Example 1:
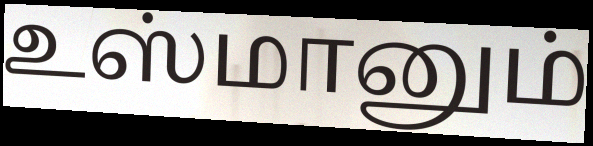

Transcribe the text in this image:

உஸ்மானும்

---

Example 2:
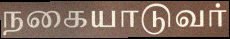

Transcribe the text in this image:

நகையாடுவர்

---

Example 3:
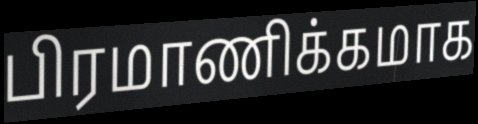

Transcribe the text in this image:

பிரமாணிக்கமாக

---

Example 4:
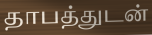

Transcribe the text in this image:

தாபத்துடன்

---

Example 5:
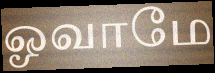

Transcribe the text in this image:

ஓவாமே